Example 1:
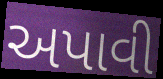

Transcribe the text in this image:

અપાવી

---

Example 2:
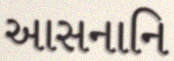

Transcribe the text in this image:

આસનાનિ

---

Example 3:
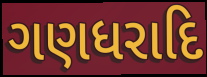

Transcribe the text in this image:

ગણધરાદિ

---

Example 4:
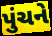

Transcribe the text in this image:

પુંચને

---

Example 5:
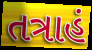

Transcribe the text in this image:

તત્રાહં